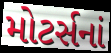
મોટર્સનાં